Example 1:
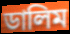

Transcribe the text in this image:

ডালিম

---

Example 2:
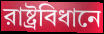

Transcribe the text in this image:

রাষ্ট্রবিধানে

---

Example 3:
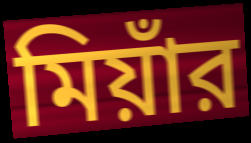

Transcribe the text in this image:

মিয়াঁর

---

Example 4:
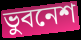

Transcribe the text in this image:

ভুবনেশ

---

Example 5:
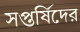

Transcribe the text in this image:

সপ্তর্ষিদের